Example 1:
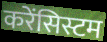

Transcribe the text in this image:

करेंसिस्टम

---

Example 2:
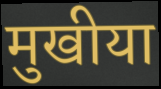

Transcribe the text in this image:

मुखीया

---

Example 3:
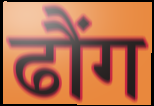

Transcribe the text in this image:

ढौंग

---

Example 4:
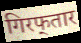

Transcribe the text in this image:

गिरफ्‌तार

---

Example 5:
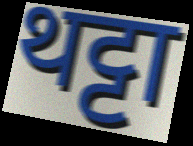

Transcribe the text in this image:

थट्टा